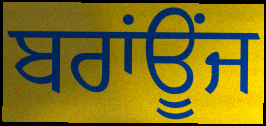
ਬਰਾਂਊਂਜ